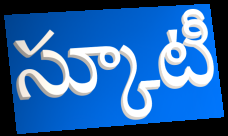
స్కూటీ